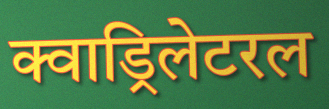
क्वाड्रिलेटरल